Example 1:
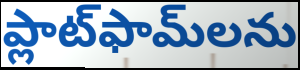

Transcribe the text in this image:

ప్లాట్‌ఫామ్‌లను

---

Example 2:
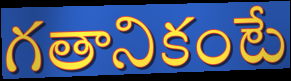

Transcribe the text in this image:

గతానికంటే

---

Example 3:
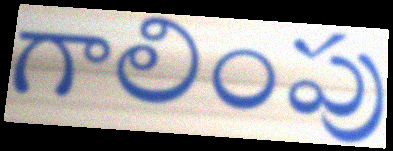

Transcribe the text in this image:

గాలింపు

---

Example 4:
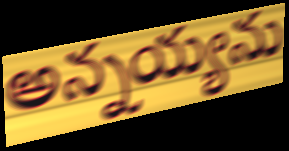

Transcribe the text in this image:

అన్నయ్యను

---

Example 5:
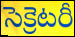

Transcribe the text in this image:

సెక్రెటరీ